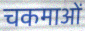
चकमाओं